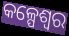
କଳ୍ପେଶ୍ୱର